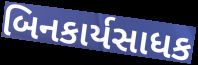
બિનકાર્યસાધક